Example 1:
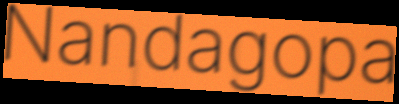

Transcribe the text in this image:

Nandagopa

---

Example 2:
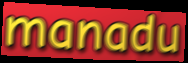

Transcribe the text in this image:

manadu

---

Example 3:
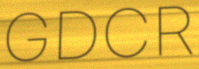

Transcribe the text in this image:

GDCR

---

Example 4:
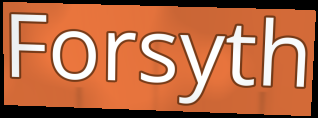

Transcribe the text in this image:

Forsyth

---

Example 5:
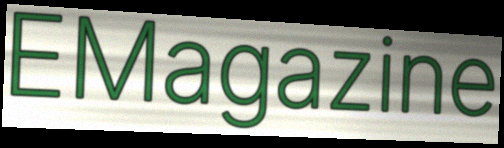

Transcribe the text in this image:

EMagazine